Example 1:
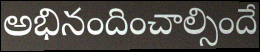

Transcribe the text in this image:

అభినందించాల్సిందే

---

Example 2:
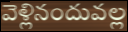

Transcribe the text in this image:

వెళ్లినందువల్ల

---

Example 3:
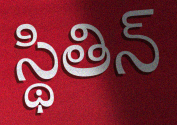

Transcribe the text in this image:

స్థితిన్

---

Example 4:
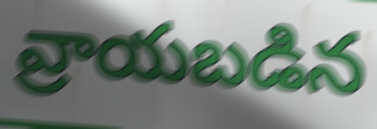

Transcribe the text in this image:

వ్రాయబడిన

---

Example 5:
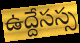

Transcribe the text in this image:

ఉద్దేసస్స